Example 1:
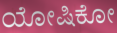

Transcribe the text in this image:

ಯೋಷಿಕೋ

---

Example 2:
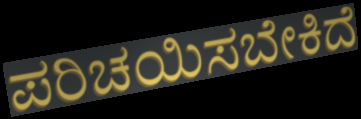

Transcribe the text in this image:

ಪರಿಚಯಿಸಬೇಕಿದೆ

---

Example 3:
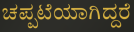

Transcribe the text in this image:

ಚಪ್ಪಟೆಯಾಗಿದ್ದರೆ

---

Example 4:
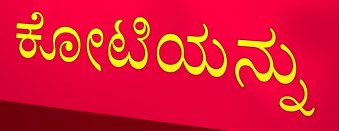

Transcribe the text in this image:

ಕೋಟಿಯನ್ನು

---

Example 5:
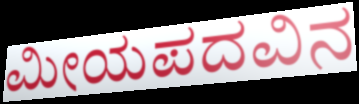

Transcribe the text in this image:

ಮೀಯಪದವಿನ